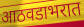
आठवडाभरात